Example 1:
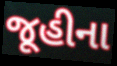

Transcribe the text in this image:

જૂહીના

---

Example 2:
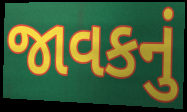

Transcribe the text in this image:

જાવકનું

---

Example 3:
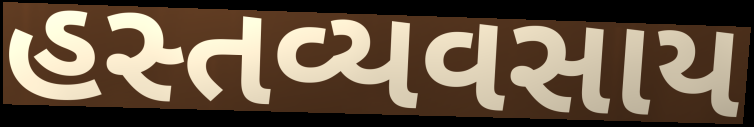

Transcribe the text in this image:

હસ્તવ્યવસાય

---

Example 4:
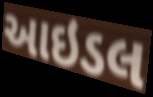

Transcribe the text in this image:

આઇડલ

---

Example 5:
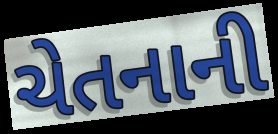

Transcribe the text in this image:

ચેતનાની